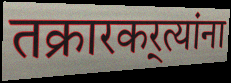
तक्रारकर्त्यांना